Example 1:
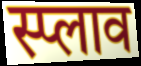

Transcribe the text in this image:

स्प्लाव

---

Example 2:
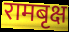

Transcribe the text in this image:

रामबृक्ष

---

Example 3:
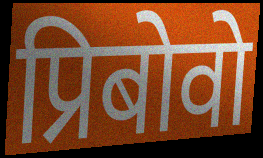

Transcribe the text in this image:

प्रिबोवो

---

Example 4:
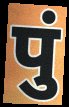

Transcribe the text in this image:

पुं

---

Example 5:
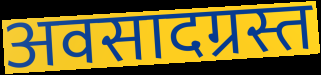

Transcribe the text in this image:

अवसादग्रस्त